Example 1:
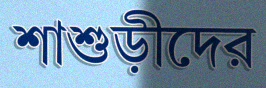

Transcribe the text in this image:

শাশুড়ীদের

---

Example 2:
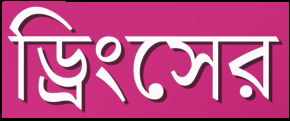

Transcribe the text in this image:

ড্রিংসের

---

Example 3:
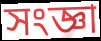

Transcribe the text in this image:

সংজ্ঞা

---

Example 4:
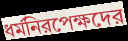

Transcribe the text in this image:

ধর্মনিরপেক্ষদের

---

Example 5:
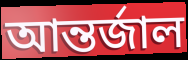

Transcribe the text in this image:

আন্তর্জাল